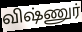
விஷ்ணுர்